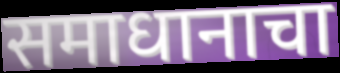
समाधानाचा